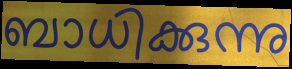
ബാധിക്കുന്നു